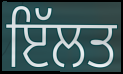
ਇੱਲਤ